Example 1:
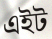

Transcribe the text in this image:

এইট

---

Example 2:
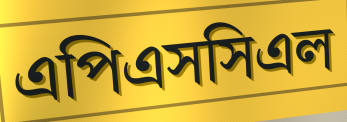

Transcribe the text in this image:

এপিএসসিএল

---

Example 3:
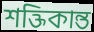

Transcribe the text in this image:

শক্তিকান্ত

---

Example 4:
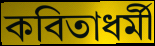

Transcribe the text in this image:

কবিতাধর্মী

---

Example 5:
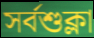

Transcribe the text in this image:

সর্বশুক্লা